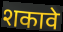
शकावे